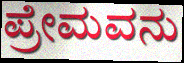
ಪ್ರೇಮವನು